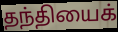
தந்தியைக்